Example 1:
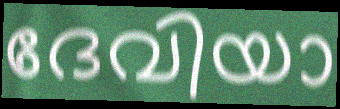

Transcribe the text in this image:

ദേവിയാ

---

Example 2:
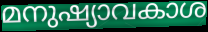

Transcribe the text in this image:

മനുഷ്യാവകാശ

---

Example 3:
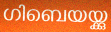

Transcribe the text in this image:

ഗിബെയയ്ക്കു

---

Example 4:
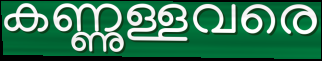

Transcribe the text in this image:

കണ്ണുള്ളവരെ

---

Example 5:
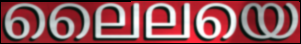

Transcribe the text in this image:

ലൈലയെ